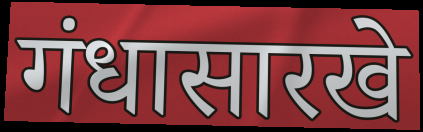
गंधासारखे